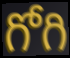
గోగి